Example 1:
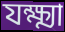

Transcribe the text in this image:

যক্ষ্মা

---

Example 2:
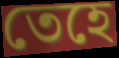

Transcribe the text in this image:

তেহে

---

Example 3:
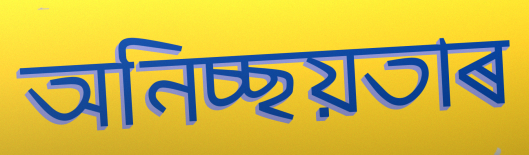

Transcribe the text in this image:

অনিচ্ছয়তাৰ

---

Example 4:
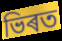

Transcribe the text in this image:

ভিৰত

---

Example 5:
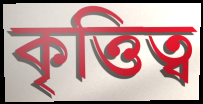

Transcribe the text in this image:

কৃত্তিত্ব